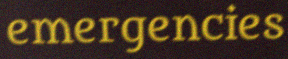
emergencies